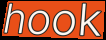
hook